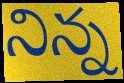
నిన్న